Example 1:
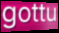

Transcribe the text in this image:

gottu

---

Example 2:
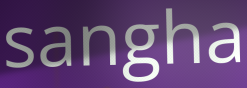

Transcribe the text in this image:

sangha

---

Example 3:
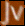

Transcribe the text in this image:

Jv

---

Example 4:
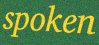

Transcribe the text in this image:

spoken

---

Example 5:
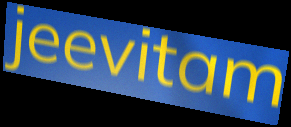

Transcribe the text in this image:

jeevitam